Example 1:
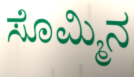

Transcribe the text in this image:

ಸೊಮ್ಮಿನ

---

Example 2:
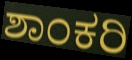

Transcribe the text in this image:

ಶಾಂಕರಿ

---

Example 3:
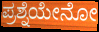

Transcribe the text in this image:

ಪ್ರಶ್ನೆಯೇನೋ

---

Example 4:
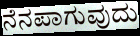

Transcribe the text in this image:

ನೆನಪಾಗುವುದು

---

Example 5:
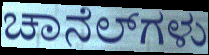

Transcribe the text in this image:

ಚಾನೆಲ್‌ಗಳು